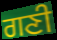
ਗਣੀ